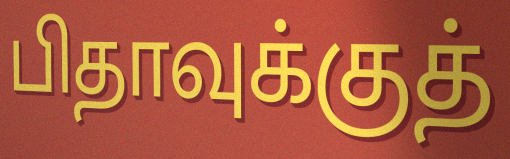
பிதாவுக்குத்